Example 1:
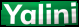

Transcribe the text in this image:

Yalini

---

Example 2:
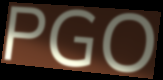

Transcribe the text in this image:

PGO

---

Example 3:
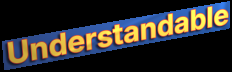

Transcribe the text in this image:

Understandable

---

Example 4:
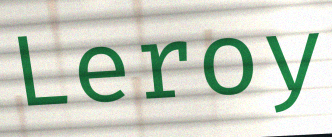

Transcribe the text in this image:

Leroy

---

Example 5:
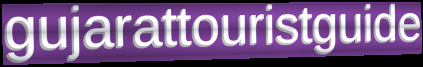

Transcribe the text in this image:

gujarattouristguide